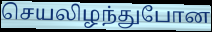
செயலிழந்துபோன